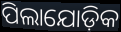
ପିଲାଯୋଡ଼ିକ